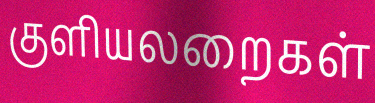
குளியலறைகள்